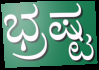
ಭ್ರಷ್ಟ